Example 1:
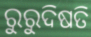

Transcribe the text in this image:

ରୁରୁଦିଷତି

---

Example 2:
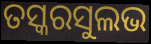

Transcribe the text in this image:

ତସ୍କରସୁଲଭ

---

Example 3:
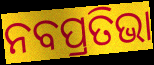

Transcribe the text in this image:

ନବପ୍ରତିଭା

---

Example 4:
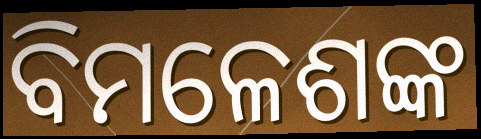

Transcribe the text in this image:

ବିମଳେଶଙ୍କ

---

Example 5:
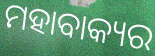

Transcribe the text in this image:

ମହାବାକ୍ୟର